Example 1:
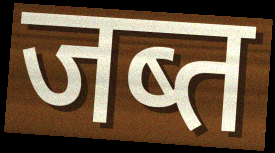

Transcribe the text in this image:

जब्त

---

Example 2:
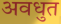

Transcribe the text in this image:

अवधुत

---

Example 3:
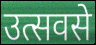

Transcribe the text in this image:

उत्सवसे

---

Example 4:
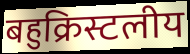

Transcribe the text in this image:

बहुक्रिस्टलीय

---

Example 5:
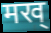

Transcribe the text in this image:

मख्